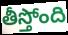
తీస్తోంది